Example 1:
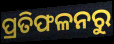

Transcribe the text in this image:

ପ୍ରତିଫଳନରୁ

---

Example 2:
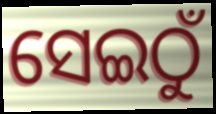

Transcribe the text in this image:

ସେଇଠୁଁ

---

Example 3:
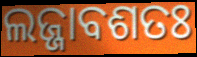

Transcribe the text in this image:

ଲଜ୍ଜାବଶତଃ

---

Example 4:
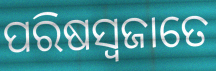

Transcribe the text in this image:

ପରିଷସ୍ଵଜାତେ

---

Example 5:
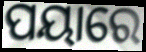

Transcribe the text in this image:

ପୟାରେ